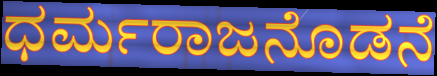
ಧರ್ಮರಾಜನೊಡನೆ